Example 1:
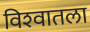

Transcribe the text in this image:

विश्‍वातला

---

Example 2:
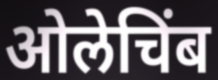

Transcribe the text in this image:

ओलेचिंब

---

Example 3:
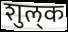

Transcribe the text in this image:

शुल्क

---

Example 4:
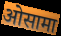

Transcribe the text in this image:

ओसामा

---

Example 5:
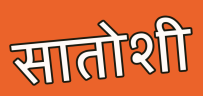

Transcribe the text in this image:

सातोशी